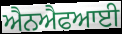
ਐਨਐਫਆਈ